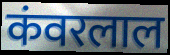
कंवरलाल